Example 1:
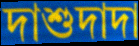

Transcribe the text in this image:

দাশুদাদা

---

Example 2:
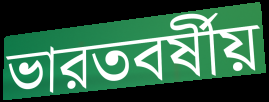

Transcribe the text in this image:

ভারতবর্ষীয়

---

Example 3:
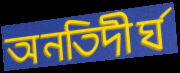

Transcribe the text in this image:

অনতিদীর্ঘ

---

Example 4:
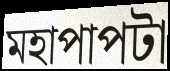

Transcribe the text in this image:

মহাপাপটা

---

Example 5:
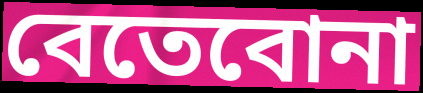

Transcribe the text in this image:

বেতেবোনা